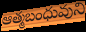
ఆత్మబంధువుని